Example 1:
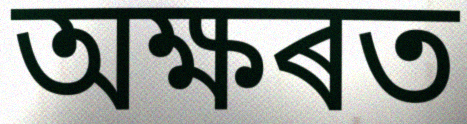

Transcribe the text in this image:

অক্ষৰত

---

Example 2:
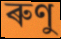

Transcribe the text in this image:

ৰুণু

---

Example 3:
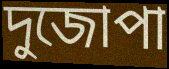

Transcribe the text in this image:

দুজোপা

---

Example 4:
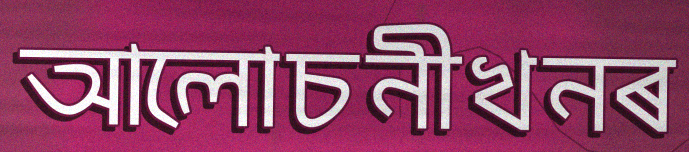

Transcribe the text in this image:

আলোচনীখনৰ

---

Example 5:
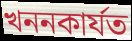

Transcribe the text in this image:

খননকাৰ্যত